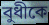
বুধীকে